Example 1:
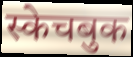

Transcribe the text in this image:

स्केचबुक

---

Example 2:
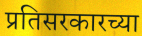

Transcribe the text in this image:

प्रतिसरकारच्या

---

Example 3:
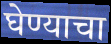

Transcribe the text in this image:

घेण्याचा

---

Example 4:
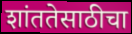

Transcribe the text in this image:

शांततेसाठीचा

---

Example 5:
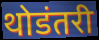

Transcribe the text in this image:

थोडंतरी